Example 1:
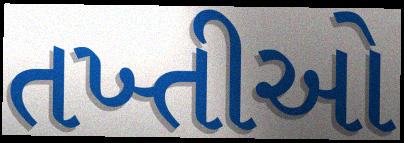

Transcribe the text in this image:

તખ્તીઓ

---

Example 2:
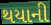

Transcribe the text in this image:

થયાની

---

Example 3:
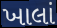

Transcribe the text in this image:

ખાલાં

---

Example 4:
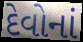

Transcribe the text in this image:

દેવોનાં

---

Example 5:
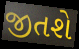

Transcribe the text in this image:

જીતશે